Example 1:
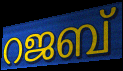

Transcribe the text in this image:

റജബ്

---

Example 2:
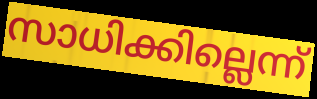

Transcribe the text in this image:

സാധിക്കില്ലെന്ന്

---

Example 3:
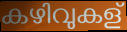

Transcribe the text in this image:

കഴിവുകള്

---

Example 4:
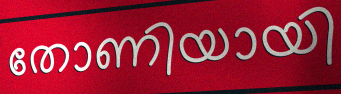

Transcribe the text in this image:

തോണിയായി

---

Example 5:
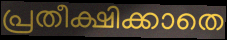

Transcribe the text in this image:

പ്രതീക്ഷിക്കാതെ